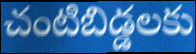
చంటిబిడ్డలకు